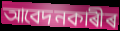
আবেদনকাৰীৰ